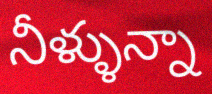
నీళ్ళున్నా